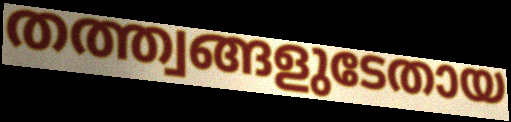
തത്ത്വങ്ങളുടേതായ